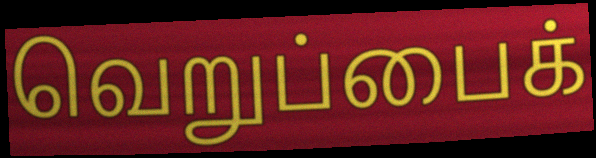
வெறுப்பைக்